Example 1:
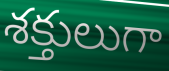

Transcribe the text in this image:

శక్తులుగా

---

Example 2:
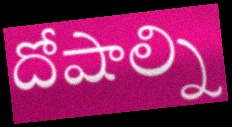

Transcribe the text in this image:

దోషాల్ని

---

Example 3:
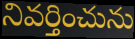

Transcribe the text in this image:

నివర్తించును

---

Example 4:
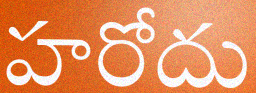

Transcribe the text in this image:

హరోదు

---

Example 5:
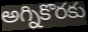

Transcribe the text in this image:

అగ్నికొరకు